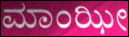
ಮಾಂಝೀ